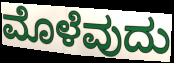
ಮೊಳೆವುದು